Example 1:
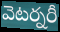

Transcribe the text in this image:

వెటర్నరీ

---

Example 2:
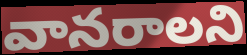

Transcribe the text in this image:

వానరాలని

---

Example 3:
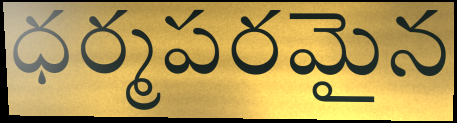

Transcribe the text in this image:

ధర్మపరమైన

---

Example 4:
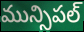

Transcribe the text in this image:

మున్సిపల్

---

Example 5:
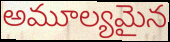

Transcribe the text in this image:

అమూల్యమైన